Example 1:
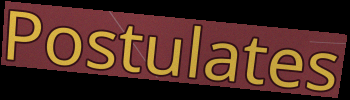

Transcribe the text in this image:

Postulates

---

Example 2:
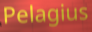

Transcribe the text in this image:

Pelagius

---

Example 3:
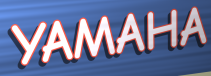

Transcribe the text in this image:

YAMAHA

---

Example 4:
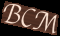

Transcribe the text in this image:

BCM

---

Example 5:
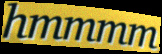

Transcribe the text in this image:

hmmmm